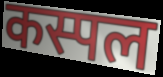
कस्पल